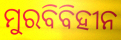
ମୁରବିବିହୀନ